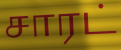
சாரட்